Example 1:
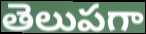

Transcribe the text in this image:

తెలుపగా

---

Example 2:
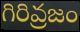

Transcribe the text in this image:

గిరివ్రజం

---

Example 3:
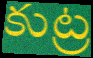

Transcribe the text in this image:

కుట్ర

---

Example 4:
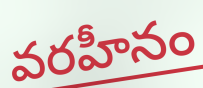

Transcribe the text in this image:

వరహీనం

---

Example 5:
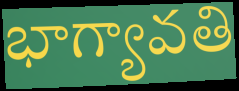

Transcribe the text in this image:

భాగ్యావతి